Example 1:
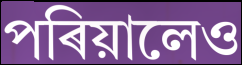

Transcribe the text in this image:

পৰিয়ালেও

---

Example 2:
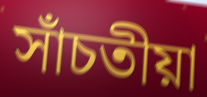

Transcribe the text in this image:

সাঁচতীয়া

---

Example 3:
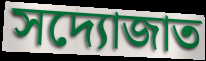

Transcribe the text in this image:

সদ্যোজাত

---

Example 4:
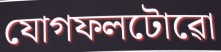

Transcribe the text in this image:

যোগফলটোৱো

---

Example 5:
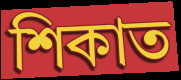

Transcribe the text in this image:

শিকাত